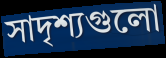
সাদৃশ্যগুলো